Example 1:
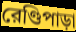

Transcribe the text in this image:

রেণ্ডিপাড়া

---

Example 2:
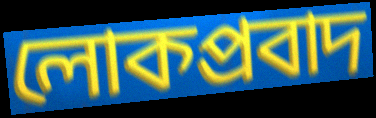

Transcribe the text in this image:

লোকপ্রবাদ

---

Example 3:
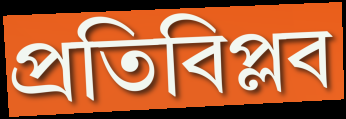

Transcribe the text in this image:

প্রতিবিপ্লব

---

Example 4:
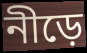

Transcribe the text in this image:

নীড়ে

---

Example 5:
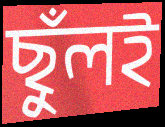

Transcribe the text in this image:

ছুঁলই